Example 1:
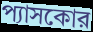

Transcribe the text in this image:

প্যাসকোর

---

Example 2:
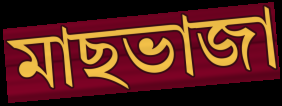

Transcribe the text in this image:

মাছভাজা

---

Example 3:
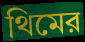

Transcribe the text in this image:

থিমের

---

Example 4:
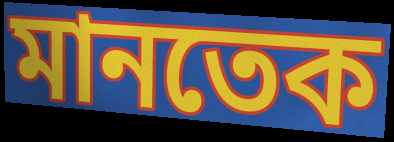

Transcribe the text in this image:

মানতেক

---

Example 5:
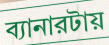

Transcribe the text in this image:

ব্যানারটায়